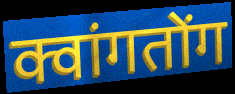
क्वांगतोंग